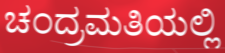
ಚಂದ್ರಮತಿಯಲ್ಲಿ